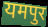
यमपुर